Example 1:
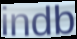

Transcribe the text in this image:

indb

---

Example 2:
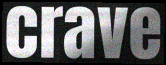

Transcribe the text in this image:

crave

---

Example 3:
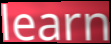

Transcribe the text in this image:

learn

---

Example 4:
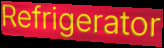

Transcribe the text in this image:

Refrigerator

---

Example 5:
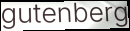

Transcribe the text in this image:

gutenberg